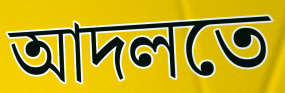
আদলতে